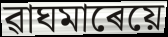
ৱাঘমাৰেয়ে